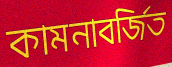
কামনাবর্জিত